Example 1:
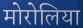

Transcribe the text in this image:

मोरोलिया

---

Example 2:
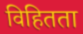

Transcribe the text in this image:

विहितता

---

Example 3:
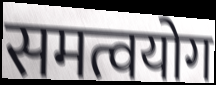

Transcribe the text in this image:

समत्वयोग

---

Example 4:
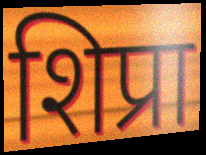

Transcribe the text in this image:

शिप्रा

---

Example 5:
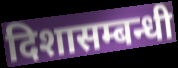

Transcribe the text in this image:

दिशासम्बन्धी